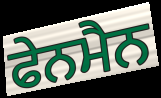
ਫੇਨਮੈਨ